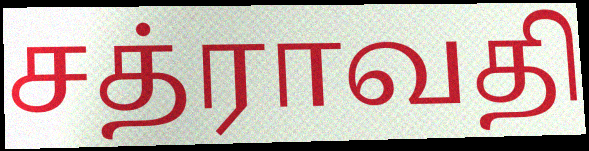
சத்ராவதி